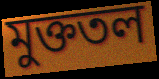
মুক্ততল